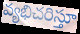
వ్యభిచరిస్తూ